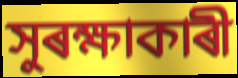
সুৰক্ষাকাৰী